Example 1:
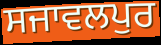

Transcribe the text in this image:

ਸਜਾਵਲਪੁਰ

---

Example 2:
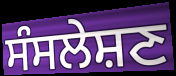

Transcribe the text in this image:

ਸੰਸਲੇਸ਼ਣ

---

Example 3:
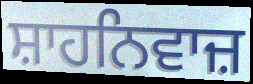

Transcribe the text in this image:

ਸ਼ਾਹਨਿਵਾਜ਼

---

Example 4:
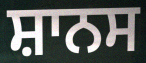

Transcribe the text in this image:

ਸ਼ਾਨਸ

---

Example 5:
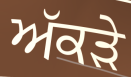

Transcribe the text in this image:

ਅੱਕੜੇ